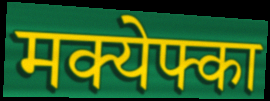
मक्येफ्का